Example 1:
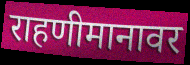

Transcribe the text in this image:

राहणीमानावर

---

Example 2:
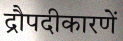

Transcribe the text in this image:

द्रौपदीकारणें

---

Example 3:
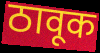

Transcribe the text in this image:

ठावूक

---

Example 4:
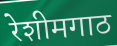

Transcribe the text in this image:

रेशीमगाठ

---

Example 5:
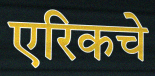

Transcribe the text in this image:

एरिकचे